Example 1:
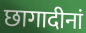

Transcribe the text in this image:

छागादीनां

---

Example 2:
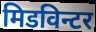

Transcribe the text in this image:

मिडविन्टर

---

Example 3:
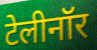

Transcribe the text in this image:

टेलीनॉर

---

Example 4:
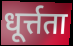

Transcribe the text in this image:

धूर्त्तता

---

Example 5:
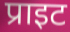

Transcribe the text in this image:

प्राइट